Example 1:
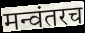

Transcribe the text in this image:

मन्वंतरच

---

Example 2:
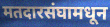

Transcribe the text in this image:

मतदारसंघामधून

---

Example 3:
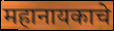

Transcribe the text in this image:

महानायकाचे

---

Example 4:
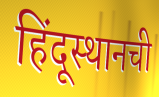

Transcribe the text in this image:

हिंदूस्थानची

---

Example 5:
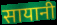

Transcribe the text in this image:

सायानी